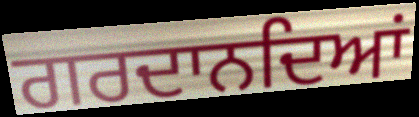
ਗਰਦਾਨਦਿਆਂ